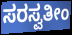
ಸರಸ್ವತೀಂ